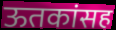
ऊतकांसह